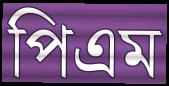
পিএম